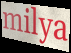
milya